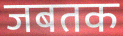
जबतक